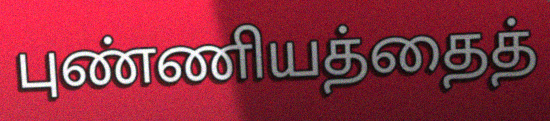
புண்ணியத்தைத்